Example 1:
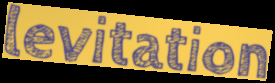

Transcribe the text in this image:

levitation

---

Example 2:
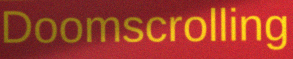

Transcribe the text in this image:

Doomscrolling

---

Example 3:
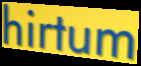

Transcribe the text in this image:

hirtum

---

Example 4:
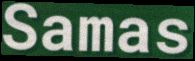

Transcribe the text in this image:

Samas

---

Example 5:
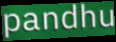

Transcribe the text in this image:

pandhu